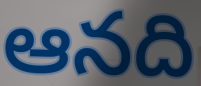
ఆనది